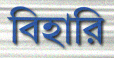
বিহারি